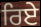
ਰਿਏ